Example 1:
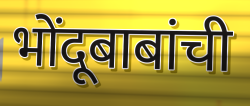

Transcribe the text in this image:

भोंदूबाबांची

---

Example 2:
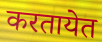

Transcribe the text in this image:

करतायेत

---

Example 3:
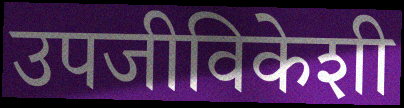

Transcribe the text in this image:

उपजीविकेशी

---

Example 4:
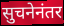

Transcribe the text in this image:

सुचनेनंतर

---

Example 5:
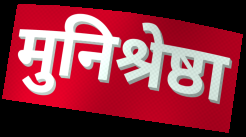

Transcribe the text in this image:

मुनिश्रेष्ठा